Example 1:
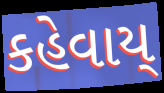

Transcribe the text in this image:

કહેવાય્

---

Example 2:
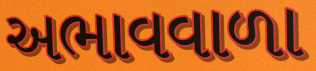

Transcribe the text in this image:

અભાવવાળા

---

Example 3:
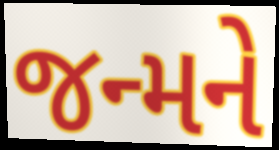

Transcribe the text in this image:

જન્મને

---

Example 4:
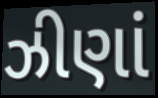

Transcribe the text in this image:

ઝીણાં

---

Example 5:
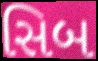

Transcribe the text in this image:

સિબ